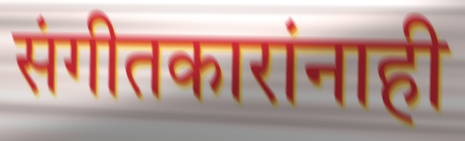
संगीतकारांनाही